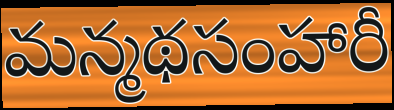
మన్మథసంహారీ